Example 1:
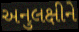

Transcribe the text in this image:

અનુલક્ષીને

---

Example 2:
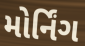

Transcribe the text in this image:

મોર્નિંગ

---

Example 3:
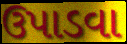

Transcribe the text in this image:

ઉપાડવા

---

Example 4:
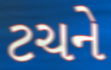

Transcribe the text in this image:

ટચને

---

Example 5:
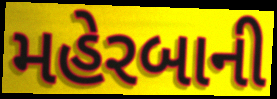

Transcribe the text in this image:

મહેરબાની